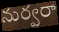
నుర్వరా